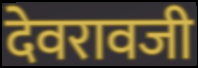
देवरावजी